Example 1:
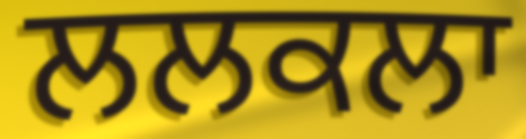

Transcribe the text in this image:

ਲਲਕਲਾ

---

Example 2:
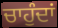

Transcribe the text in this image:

ਚਾਹੁੰਦਾਂ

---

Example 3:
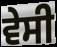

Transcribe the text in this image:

ਵੇਸੀ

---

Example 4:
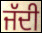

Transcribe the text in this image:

ਜੱਦੀ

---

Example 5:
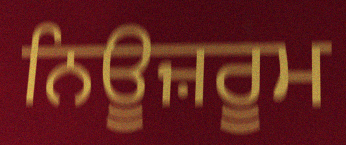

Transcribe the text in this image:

ਨਿਊਜ਼ਰੂਮ